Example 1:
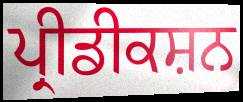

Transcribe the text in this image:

ਪ੍ਰੀਡੀਕਸ਼ਨ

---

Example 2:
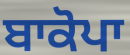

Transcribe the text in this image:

ਬਾਕੋਪਾ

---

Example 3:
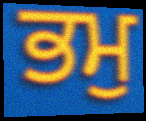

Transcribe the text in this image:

ਭਮੁ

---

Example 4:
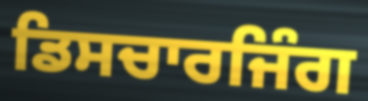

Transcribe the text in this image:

ਡਿਸਚਾਰਜਿੰਗ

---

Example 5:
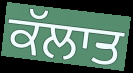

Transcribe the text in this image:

ਕੱਲਾਤ